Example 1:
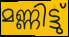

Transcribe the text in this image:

മണ്ണിട്ടു്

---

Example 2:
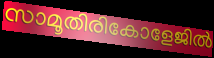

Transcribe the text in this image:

സാമൂതിരികോളേജിൽ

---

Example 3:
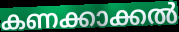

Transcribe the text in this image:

കണക്കാക്കൽ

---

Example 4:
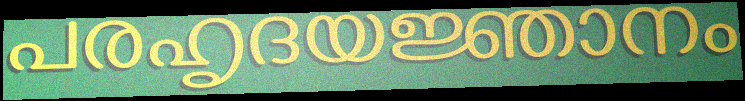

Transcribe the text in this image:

പരഹൃദയജ്ഞാനം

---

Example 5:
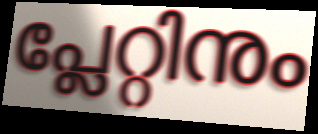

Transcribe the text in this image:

പ്ലേറ്റിനും